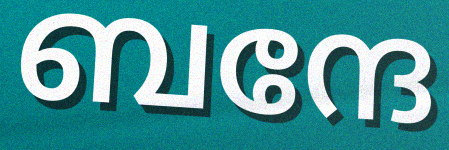
ബന്ദേ